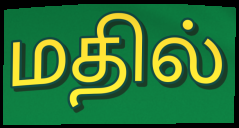
மதில்